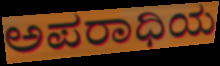
ಅಪರಾಧಿಯ